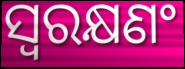
ସ୍ୱରକ୍ଷଣଂ